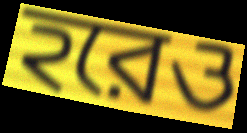
হরেও